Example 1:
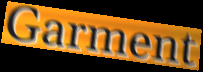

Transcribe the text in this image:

Garment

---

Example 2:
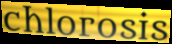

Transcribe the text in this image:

chlorosis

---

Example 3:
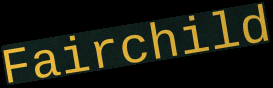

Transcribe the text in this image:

Fairchild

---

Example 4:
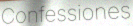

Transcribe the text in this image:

Confessiones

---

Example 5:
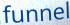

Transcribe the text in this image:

funnel